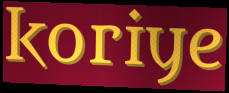
koriye